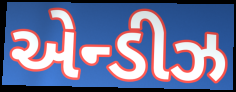
એન્ડીઝ